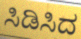
ಸಿಡಿಸಿದ